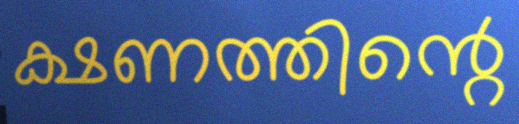
ക്ഷണത്തിന്റെ